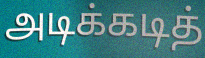
அடிக்கடித்